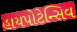
હાયપોટેન્સિવ